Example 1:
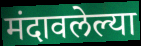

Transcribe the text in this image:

मंदावलेल्या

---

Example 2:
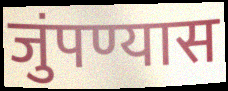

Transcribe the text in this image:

जुंपण्यास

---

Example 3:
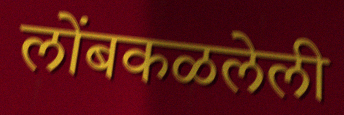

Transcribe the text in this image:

लोंबकळलेली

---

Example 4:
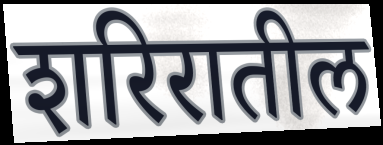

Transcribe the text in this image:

शरिरातील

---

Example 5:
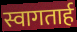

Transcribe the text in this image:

स्वागतार्ह